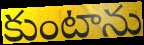
కుంటాను